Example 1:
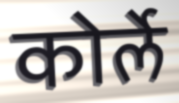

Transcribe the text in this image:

कोर्ले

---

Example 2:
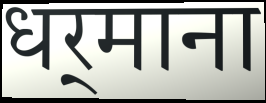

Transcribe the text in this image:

धर्माना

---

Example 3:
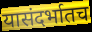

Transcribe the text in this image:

यासंदर्भातच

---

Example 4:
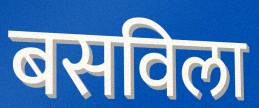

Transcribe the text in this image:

बसविला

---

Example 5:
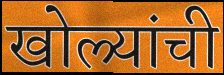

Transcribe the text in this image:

खोल्यांची